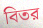
বিতর